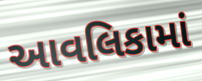
આવલિકામાં